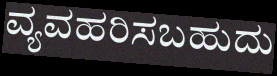
ವ್ಯವಹರಿಸಬಹುದು